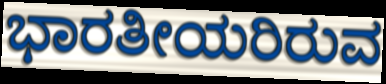
ಭಾರತೀಯರಿರುವ